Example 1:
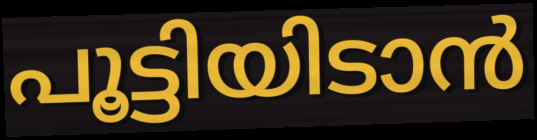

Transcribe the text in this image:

പൂട്ടിയിടാൻ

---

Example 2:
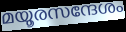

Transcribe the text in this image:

മയൂരസന്ദേശം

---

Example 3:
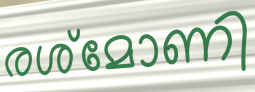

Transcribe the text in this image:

രശ്മോണി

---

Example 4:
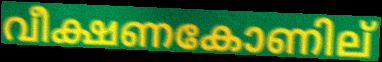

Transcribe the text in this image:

വീക്ഷണകോണില്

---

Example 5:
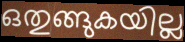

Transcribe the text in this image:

ഒതുങ്ങുകയില്ല